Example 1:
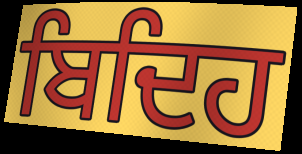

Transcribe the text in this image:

ਬਿਦਿਹ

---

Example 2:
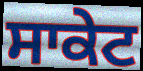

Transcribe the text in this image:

ਸਾਕੇਟ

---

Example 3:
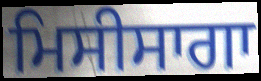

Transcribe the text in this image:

ਮਿਸੀਸਾਗਾ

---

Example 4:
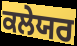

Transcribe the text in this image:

ਕਲੇਯਰ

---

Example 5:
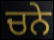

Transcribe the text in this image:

ਚਨੇ